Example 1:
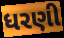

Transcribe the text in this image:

ધરણી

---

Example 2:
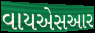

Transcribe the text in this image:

વાયએસઆર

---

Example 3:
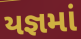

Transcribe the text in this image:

યજ્ઞમાં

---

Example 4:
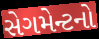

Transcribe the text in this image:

સેગમેન્ટનો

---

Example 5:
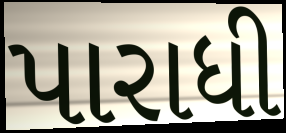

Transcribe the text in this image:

પારાધી